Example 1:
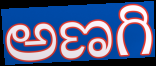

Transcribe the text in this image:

అణగి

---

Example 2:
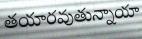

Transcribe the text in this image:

తయారవుతున్నాయా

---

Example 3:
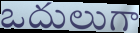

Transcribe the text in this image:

ఒదులుగా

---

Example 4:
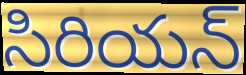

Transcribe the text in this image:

సిరియన్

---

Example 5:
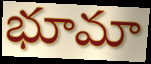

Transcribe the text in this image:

భూమా